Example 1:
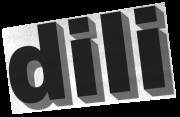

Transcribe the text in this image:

dili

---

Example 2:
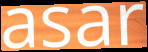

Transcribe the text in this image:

asar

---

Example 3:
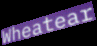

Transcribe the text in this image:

Wheatear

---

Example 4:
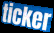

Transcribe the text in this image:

ticker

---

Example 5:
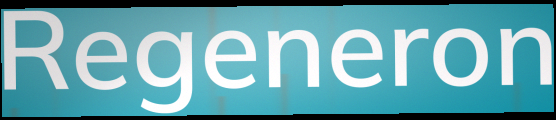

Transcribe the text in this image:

Regeneron